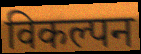
विकल्पन